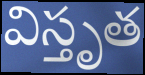
విస్తృత